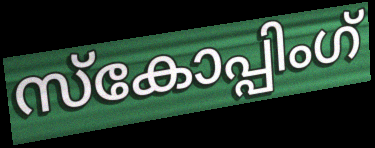
സ്കോപ്പിംഗ്